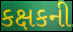
કક્ષકની